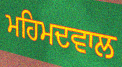
ਮਹਿਮਦਵਾਲ